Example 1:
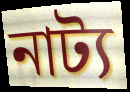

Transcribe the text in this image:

নাট্য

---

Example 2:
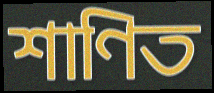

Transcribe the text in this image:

শাণিত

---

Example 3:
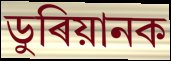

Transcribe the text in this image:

ডুৰিয়ানক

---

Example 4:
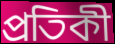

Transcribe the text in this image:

প্ৰতিকী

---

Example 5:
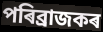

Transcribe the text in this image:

পৰিব্ৰাজকৰ